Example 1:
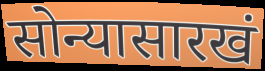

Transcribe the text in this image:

सोन्यासारखं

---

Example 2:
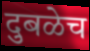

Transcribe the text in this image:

दुबळेच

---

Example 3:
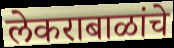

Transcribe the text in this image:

लेकराबाळांचे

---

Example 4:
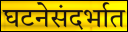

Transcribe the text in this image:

घटनेसंदर्भात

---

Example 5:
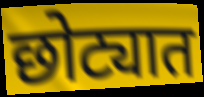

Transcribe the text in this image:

छोट्यात